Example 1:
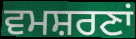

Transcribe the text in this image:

ਵਮਸ਼ਰਣਾਂ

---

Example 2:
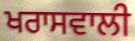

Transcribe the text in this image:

ਖਰਾਸਵਾਲੀ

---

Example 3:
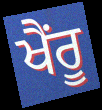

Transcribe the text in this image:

ਖੈਂਰੂ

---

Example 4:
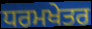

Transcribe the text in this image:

ਧਰਮਖੇਤਰ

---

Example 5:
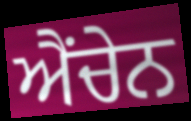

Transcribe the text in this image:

ਐਂਚੇਨ